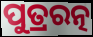
ପୁତ୍ରରତ୍ନ